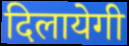
दिलायेगी